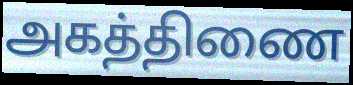
அகத்திணை